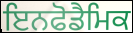
ਇਨਫੋਡੈਮਿਕ